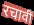
रचावीं